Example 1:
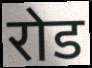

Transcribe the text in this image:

रोड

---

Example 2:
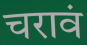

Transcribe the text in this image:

चरावं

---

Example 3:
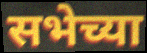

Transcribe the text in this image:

सभेच्या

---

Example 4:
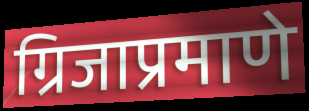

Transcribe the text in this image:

ग्रिजाप्रमाणे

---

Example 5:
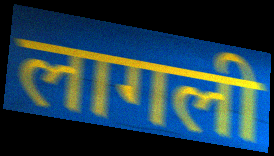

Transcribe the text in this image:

लागली